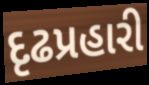
દૃઢપ્રહારી